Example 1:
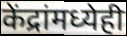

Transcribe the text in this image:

केंद्रांमध्येही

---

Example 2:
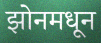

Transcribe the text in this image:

झोनमधून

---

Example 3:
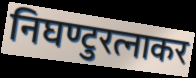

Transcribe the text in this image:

निघण्टुरत्नाकर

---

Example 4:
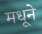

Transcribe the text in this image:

मधूने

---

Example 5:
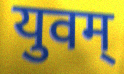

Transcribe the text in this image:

युवम्